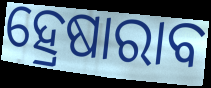
ହ୍ରେଷାରାବ